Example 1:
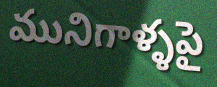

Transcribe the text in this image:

మునిగాళ్ళపై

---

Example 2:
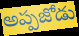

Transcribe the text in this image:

అప్పజోడు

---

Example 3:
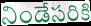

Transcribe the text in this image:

నిండేసరికి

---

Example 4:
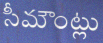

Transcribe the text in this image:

సీమౌంట్లు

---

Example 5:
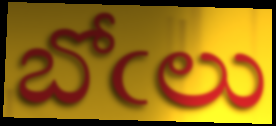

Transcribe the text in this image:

బోఁలు